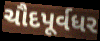
ચૌદપૂર્વધર